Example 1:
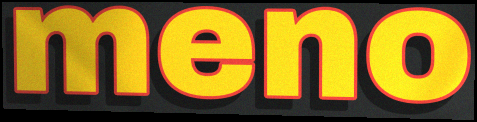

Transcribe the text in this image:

meno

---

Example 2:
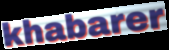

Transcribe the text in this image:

khabarer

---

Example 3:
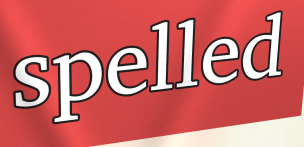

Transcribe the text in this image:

spelled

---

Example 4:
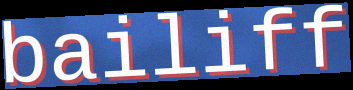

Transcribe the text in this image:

bailiff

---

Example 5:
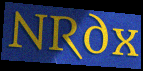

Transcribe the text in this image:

NRdx